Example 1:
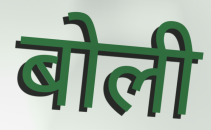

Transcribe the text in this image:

बोली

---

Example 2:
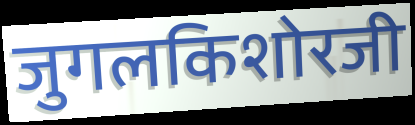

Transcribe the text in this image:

जुगलकिशोरजी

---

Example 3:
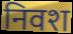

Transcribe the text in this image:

निवश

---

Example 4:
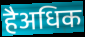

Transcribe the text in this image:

हैअधिक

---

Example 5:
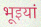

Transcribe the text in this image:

भूइयां